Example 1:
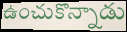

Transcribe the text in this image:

ఉంచుకొన్నాడు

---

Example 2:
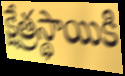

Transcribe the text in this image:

క్షేత్రస్థాయికి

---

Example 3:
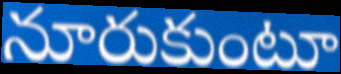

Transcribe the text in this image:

నూరుకుంటూ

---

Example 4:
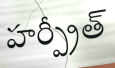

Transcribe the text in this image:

హర్ప్రీత్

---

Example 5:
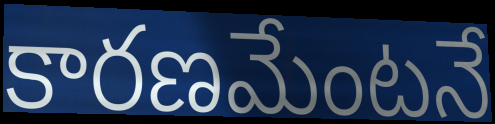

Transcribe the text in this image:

కారణమేంటనే